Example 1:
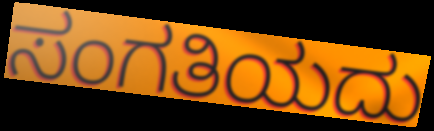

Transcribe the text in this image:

ಸಂಗತಿಯದು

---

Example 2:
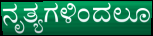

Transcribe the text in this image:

ನೃತ್ಯಗಳಿಂದಲೂ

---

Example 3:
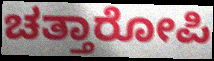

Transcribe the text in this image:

ಚತ್ತಾರೋಪಿ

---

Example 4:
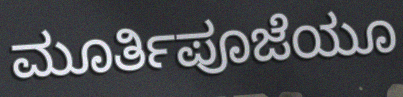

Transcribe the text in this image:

ಮೂರ್ತಿಪೂಜೆಯೂ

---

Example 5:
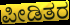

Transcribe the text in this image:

ಪೀಡಿತರ